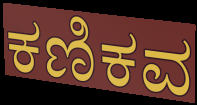
ಕಣಿಕವ